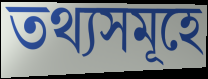
তথ্যসমূহে